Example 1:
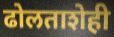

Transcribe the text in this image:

ढोलताशेही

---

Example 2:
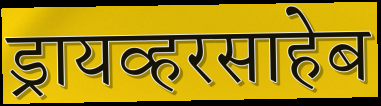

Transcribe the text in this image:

ड्रायव्हरसाहेब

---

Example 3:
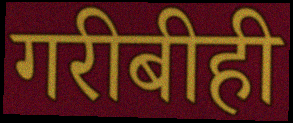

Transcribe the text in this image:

गरीबीही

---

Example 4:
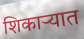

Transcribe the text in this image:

शिकाऱ्यात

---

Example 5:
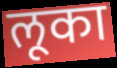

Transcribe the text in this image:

लूका